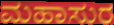
ಮಹಾಸುರ